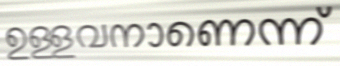
ഉള്ളവനാണെന്ന്